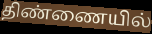
திண்ணையில்